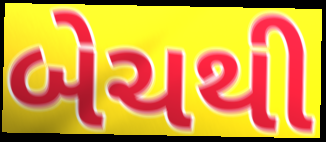
બેચથી